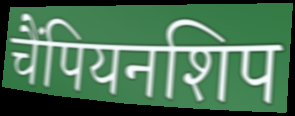
चैंपियनशिप